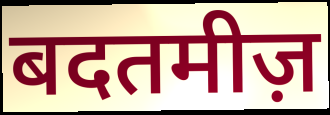
बदतमीज़